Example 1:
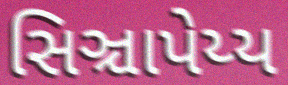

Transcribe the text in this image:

સિઞ્ચાપેય્ય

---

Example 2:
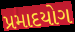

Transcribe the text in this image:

પ્રમાદયોગ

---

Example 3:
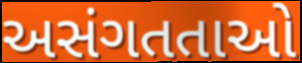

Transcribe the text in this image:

અસંગતતાઓ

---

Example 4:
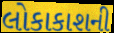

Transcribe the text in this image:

લોકાકાશની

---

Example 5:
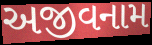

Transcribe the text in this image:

અજીવનામ